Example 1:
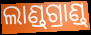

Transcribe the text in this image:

ଲାଣ୍ଡ୍‍ଗ୍ରାଣ୍ଡ୍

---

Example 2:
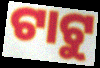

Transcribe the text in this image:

ଟାଟୁ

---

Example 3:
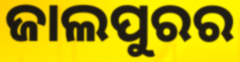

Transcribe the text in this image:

ଜାଲପୁରର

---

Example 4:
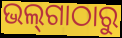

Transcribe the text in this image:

ଭଲ୍‌ଗାଠାରୁ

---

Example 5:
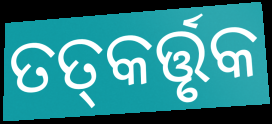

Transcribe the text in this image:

ତତ୍‌କର୍ତ୍ତୃକ